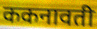
ककनावती